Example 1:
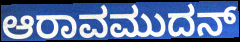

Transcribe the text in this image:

ಆರಾವಮುದನ್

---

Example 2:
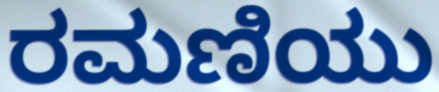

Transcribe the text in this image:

ರಮಣಿಯು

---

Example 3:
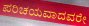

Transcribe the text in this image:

ಪರಿಚಯವಾದವರೇ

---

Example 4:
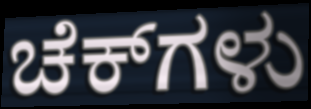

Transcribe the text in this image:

ಚೆಕ್‌ಗಳು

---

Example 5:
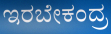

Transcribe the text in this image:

ಇರಬೇಕಂದ್ರ